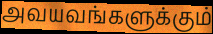
அவயவங்களுக்கும்